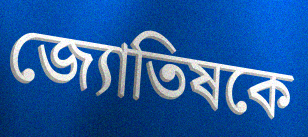
জ্যোতিষকে